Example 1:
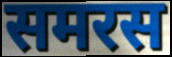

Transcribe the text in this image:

समरस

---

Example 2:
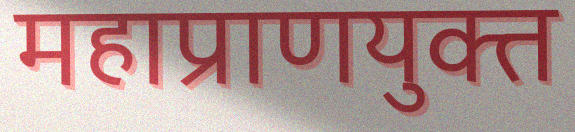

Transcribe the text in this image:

महाप्राणयुक्त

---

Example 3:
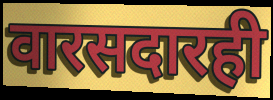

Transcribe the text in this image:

वारसदारही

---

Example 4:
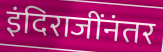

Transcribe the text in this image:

इंदिराजींनंतर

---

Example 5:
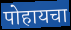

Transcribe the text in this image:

पोहायचा